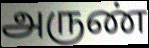
அருண்